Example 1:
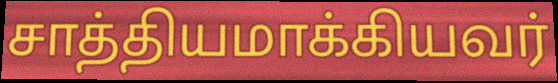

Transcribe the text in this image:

சாத்தியமாக்கியவர்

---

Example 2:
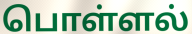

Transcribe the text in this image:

பொள்ளல்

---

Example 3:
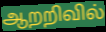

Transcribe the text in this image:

ஆறறிவில்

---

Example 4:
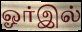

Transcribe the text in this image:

ஓர்இல்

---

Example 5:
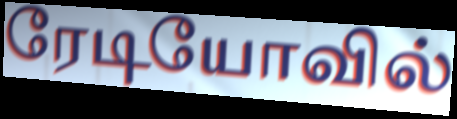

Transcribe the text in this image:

ரேடியோவில்